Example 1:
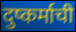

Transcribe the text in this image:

दुष्कर्माची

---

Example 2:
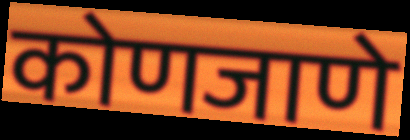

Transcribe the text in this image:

कोणजाणे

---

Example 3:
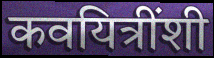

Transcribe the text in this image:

कवयित्रींशी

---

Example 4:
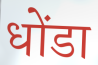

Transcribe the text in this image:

धोंडा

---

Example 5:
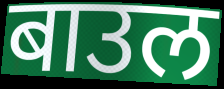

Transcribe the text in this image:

बाउल